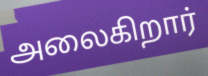
அலைகிறார்